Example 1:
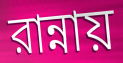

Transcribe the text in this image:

রান্নায়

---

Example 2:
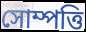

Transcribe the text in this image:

সোম্পত্তি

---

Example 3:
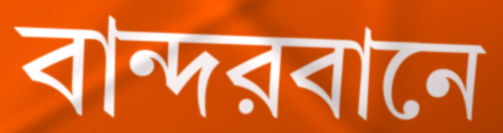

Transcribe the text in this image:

বান্দরবানে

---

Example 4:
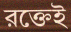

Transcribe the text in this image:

রক্তেই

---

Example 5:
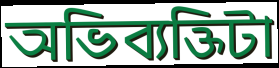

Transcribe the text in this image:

অভিব্যক্তিটা